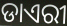
ଡାଏରୀ